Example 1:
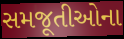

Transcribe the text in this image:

સમજૂતીઓના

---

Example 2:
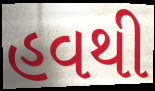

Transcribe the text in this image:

હવથી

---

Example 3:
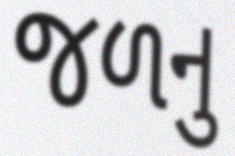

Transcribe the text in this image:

જળનુ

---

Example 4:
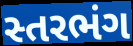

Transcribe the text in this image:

સ્તરભંગ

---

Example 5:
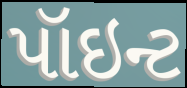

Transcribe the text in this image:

પૉઇન્ટ